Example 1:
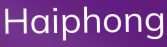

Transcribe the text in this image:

Haiphong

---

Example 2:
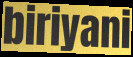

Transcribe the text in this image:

biriyani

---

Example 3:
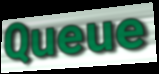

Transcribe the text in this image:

Queue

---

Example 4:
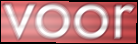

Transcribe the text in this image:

voor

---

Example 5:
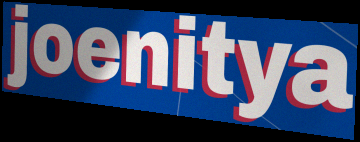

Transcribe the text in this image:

joenitya